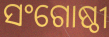
ସଂଗୋଷ୍ଠୀ